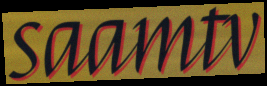
saamtv